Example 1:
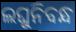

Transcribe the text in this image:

ଲଘୁନିବନ୍ଧ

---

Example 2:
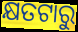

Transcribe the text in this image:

କ୍ଷତଟାରୁ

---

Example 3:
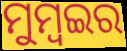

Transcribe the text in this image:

ମୁମ୍ବଇର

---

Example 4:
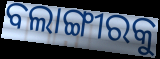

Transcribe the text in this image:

ବଲାଙ୍ଗୀରକୁ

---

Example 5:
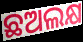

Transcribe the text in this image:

ଛଅଲକ୍ଷ